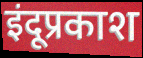
इंदूप्रकाश